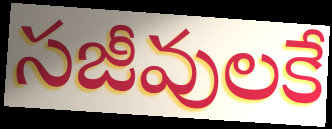
సజీవులకే